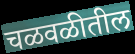
चळवळीतील